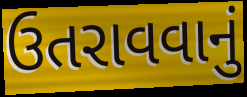
ઉતરાવવાનું